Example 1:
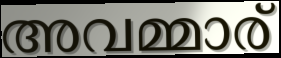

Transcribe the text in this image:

അവമ്മാര്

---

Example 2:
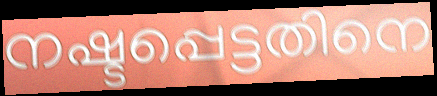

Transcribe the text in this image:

നഷ്ടപ്പെട്ടതിനെ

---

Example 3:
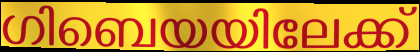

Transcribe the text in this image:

ഗിബെയയിലേക്ക്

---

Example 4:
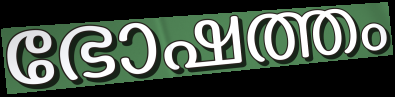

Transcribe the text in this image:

ഭോഷത്തം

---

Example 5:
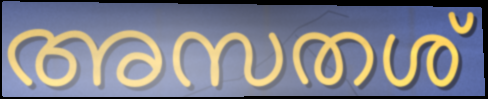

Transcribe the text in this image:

അസതശ്